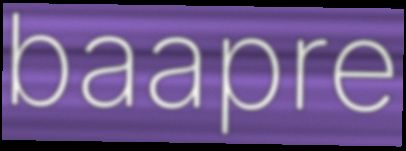
baapre